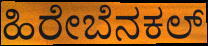
ಹಿರೇಬೆನಕಲ್